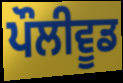
ਪੌਲੀਵੂਡ